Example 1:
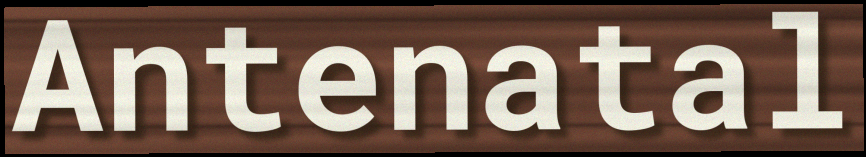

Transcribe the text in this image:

Antenatal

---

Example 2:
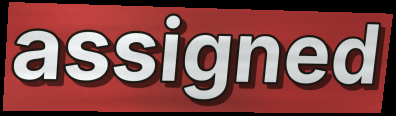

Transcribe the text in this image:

assigned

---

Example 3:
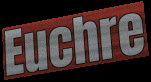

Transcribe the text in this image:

Euchre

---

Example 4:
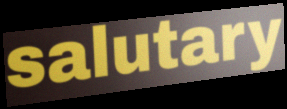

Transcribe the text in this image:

salutary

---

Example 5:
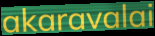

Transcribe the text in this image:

akaravalai